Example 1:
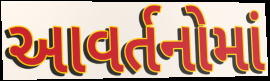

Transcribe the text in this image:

આવર્તનોમાં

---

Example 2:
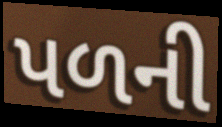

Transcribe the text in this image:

પળની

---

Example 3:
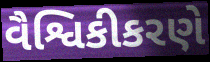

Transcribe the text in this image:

વૈશ્વિકીકરણે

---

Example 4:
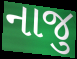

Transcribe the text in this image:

નાજુ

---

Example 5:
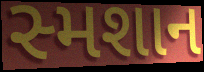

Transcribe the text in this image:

સ્મશાન